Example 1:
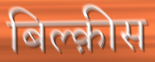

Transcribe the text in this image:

बिल्क़ीस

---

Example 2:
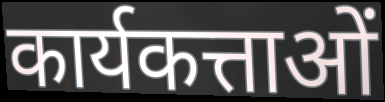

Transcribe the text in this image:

कार्यकत्ताओं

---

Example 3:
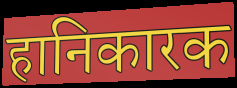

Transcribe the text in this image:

हानिकारक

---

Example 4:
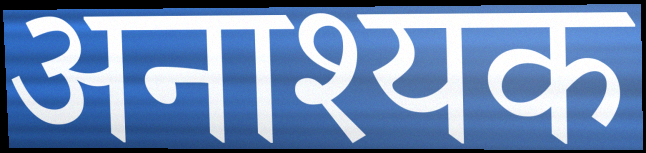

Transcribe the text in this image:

अनाश्यक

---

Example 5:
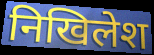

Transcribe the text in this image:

निखिलेश